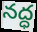
నద్ధ